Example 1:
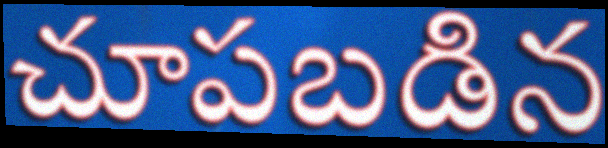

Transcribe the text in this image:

చూపబడిన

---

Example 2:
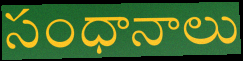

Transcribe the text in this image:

సంధానాలు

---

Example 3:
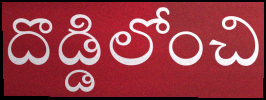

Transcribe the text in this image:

దొడ్డిలోంచి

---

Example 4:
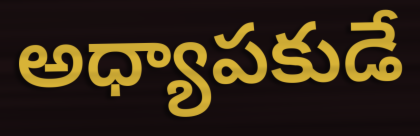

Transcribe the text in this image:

అధ్యాపకుడే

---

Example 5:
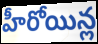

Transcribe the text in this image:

హీరోయిన్ల